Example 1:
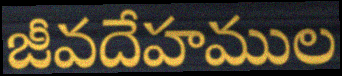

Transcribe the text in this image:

జీవదేహముల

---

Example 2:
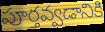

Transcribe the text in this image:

పూర్తవ్వడానికి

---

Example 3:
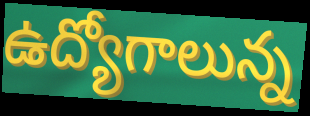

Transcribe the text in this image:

ఉద్యోగాలున్న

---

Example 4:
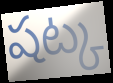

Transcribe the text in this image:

షట్క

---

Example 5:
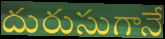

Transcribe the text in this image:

దురుసుగానే